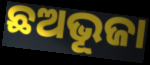
ଛଅଭୂଜା